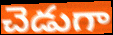
చెడుగా